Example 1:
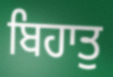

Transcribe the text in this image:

ਬਿਹਾਤੁ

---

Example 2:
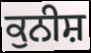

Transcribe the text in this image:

ਕੁਨੀਸ਼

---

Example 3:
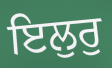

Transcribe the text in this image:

ਇਲੁਰੁ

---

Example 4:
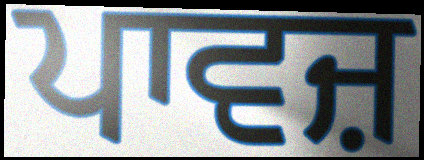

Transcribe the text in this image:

ਪਾਵਜ਼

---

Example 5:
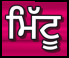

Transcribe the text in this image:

ਮਿੱਟੂ